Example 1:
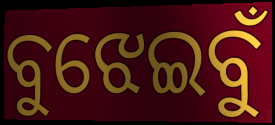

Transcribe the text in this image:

ବୁଝେଇବୁଁ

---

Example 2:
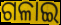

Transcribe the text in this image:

ଗଳାଇ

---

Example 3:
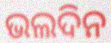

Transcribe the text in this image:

ଭଲଦିନ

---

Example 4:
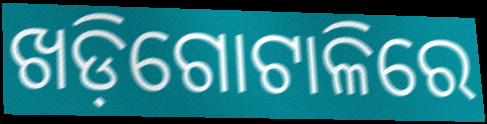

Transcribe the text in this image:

ଖଡ଼ିଗୋଟାଳିରେ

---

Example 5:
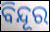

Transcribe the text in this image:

ବିନ୍ଦୂର